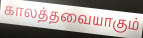
காலத்தவையாகும்